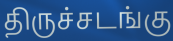
திருச்சடங்கு